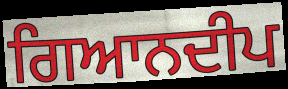
ਗਿਆਨਦੀਪ